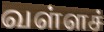
வள்ளச்